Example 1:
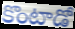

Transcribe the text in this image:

కొంటాడో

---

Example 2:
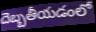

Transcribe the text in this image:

దెబ్బతీయడంలో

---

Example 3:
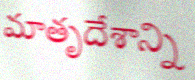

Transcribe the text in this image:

మాతృదేశాన్ని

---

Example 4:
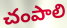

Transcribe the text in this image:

చంపాలి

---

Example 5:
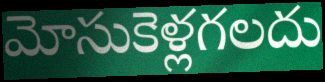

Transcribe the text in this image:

మోసుకెళ్లగలదు